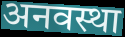
अनवस्था